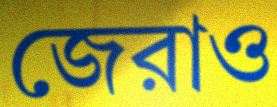
জেরাও